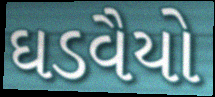
ઘડવૈયો